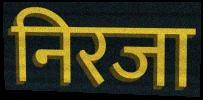
निरजा